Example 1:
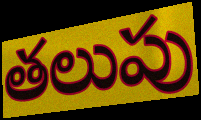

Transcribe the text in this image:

తలుపు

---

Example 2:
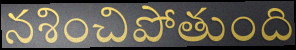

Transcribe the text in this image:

నశించిపోతుంది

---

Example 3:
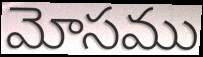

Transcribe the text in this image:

మోసము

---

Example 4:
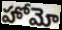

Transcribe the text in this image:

హోమో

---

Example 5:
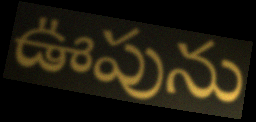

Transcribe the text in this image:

ఊపును